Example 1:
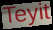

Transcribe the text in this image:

Teyit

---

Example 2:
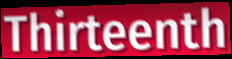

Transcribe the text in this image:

Thirteenth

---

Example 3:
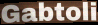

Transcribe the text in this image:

Gabtoli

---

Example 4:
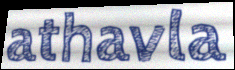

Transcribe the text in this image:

athavla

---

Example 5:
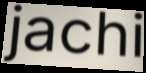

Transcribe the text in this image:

jachi